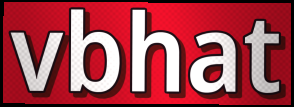
vbhat